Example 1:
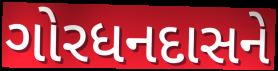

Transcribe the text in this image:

ગોરધનદાસને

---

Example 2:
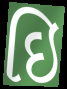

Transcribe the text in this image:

ઇિ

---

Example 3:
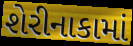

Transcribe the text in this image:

શેરીનાકામાં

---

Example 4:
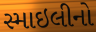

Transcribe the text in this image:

સ્માઇલીનો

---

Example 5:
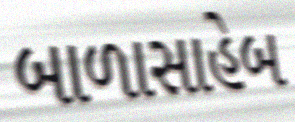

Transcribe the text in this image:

બાળાસાહેબ